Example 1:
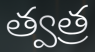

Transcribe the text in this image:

త్వత్ర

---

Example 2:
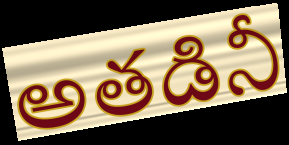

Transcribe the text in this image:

అతడినీ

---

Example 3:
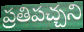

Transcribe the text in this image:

ప్రతిపచ్చని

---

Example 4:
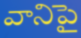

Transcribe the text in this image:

వానిపై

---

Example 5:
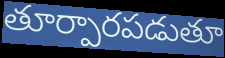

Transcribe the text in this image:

తూర్పారపడుతూ